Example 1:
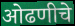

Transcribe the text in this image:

ओढणीचे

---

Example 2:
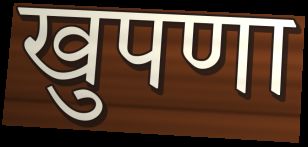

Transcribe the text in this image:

खुपणा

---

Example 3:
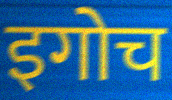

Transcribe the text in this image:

इगोच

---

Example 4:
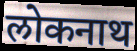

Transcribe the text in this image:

लोकनाथ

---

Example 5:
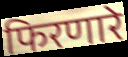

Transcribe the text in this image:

फिरणारे